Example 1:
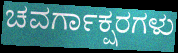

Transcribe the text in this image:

ಚವರ್ಗಾಕ್ಷರಗಳು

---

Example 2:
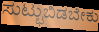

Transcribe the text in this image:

ಸುಟ್ಟುಬಿಡಬೇಕು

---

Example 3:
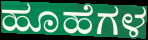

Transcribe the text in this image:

ಹೂಹೆಗಳ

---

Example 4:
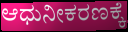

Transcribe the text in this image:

ಆಧುನೀಕರಣಕ್ಕೆ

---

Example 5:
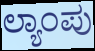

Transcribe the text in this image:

ಲ್ಯಾಂಪು